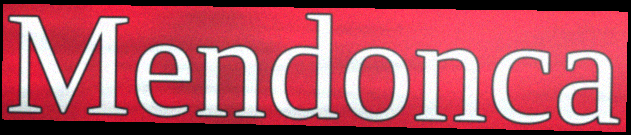
Mendonca